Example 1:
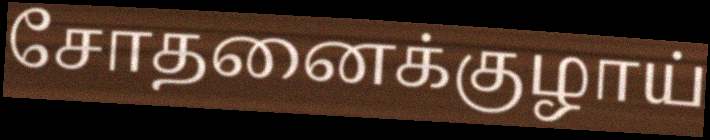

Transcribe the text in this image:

சோதனைக்குழாய்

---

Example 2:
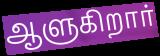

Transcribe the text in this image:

ஆளுகிறார்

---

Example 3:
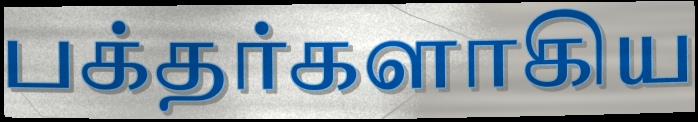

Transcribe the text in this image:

பக்தர்களாகிய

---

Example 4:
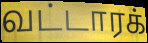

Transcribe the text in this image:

வட்டாரக்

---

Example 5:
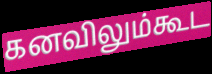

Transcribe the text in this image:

கனவிலும்கூட